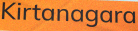
Kirtanagara